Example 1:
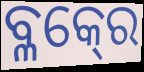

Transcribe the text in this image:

ବ୍ଳକ୍‍ରେ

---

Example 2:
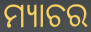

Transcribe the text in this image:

ମ୍ୟାଚର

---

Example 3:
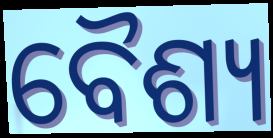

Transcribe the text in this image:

ବୈଶ୍ୟ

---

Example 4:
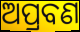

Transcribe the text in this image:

ଅପ୍ରବଣ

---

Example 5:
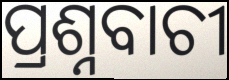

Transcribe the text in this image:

ପ୍ରଶ୍ନବାଚୀ